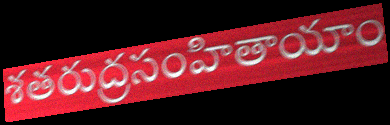
శతరుద్రసంహితాయాం